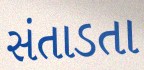
સંતાડતા